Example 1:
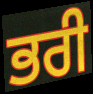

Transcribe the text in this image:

ਭਰੀ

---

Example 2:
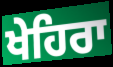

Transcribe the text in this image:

ਖੇਹਿਰਾ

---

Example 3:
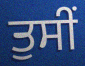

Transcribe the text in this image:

ਤੁਸੀਂ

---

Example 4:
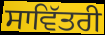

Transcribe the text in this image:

ਸਾਵਿੱਤਰੀ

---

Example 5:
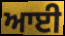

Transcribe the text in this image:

ਆਈ